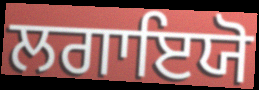
ਲਗਾਇਯੋ